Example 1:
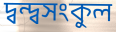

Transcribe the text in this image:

দ্বন্দ্বসংকুল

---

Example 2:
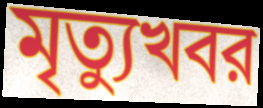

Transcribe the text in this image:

মৃত্যুখবর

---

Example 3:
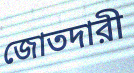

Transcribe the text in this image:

জোতদারী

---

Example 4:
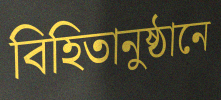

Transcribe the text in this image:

বিহিতানুষ্ঠানে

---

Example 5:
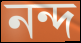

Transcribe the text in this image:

নন্দ